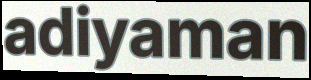
adiyaman